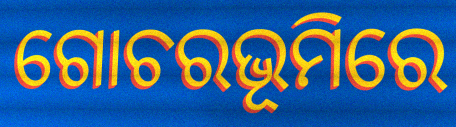
ଗୋଚରଭୂମିରେ